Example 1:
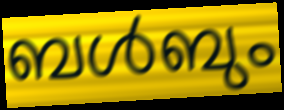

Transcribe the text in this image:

ബൾബും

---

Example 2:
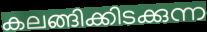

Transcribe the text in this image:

കലങ്ങിക്കിടക്കുന്ന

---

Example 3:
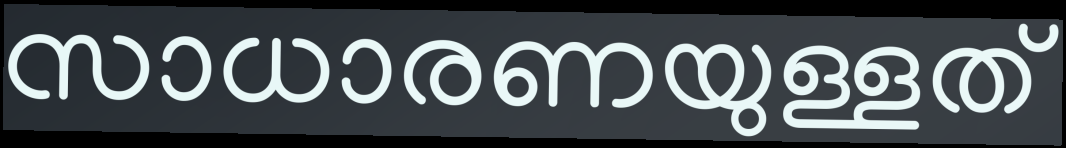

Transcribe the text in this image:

സാധാരണയുള്ളത്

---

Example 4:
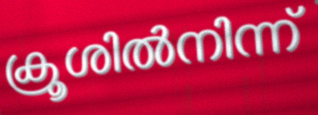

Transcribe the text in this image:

ക്രൂശിൽനിന്ന്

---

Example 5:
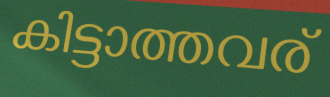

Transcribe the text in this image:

കിട്ടാത്തവര്